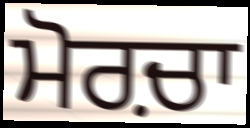
ਮੋਰ਼ਚਾ